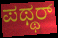
ಪಥ್ಥರ್